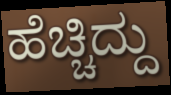
ಹೆಚ್ಚಿದ್ದು